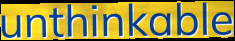
unthinkable